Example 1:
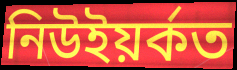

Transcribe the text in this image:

নিউইয়ৰ্কত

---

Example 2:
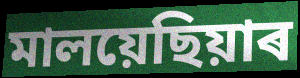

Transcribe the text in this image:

মালয়েছিয়াৰ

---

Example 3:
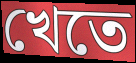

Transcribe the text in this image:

খেতে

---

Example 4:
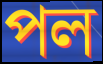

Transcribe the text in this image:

পল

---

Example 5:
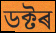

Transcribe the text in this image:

ডক্টৰ